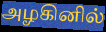
அழகினில்